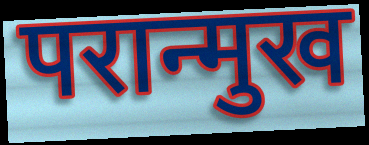
परान्मुख